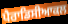
ਪੈਰਾਡਿਸੀਆਕਲ